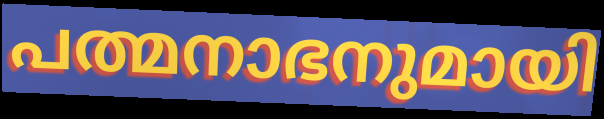
പത്മനാഭനുമായി